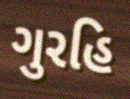
ગુરહિ